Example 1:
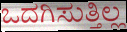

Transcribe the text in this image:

ಒದಗಿಸುತ್ತಿಲ್ಲ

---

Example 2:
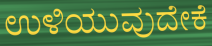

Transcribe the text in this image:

ಉಳಿಯುವುದೇಕೆ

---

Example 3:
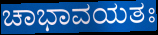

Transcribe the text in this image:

ಚಾಭಾವಯತಃ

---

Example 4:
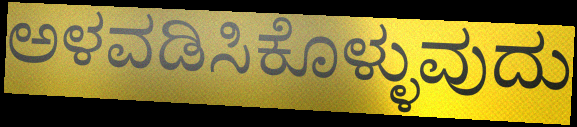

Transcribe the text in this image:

ಅಳವಡಿಸಿಕೊಳ್ಳುವುದು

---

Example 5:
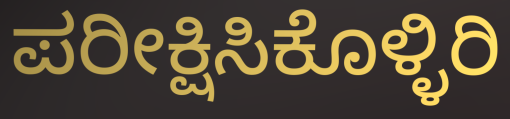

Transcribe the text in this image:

ಪರೀಕ್ಷಿಸಿಕೊಳ್ಳಿರಿ